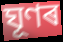
ঘূণৰ